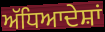
ਅੱਧਿਆਦੇਸ਼ਾਂ